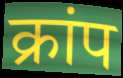
क्रांप